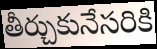
తీర్చుకునేసరికి